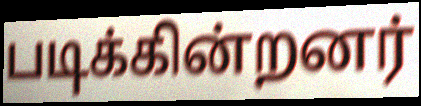
படிக்கின்றனர்